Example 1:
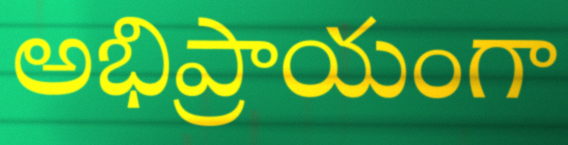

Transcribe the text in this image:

అభిప్రాయంగా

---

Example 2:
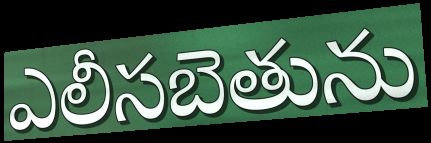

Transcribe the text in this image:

ఎలీసబెతును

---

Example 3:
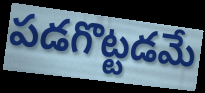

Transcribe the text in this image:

పడగొట్టడమే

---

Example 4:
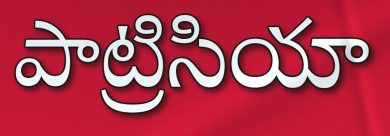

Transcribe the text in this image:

పాట్రిసియా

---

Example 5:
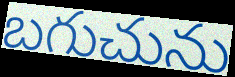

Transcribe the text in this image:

బగుచును